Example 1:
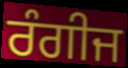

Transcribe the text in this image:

ਰੰਗੀਜ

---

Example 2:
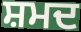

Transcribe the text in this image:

ਸ਼ਮਦ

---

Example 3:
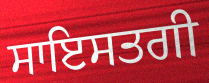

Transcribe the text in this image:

ਸਾਇਸਤਗੀ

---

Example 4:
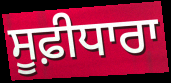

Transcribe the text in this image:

ਸੂਫ਼ੀਧਾਰਾ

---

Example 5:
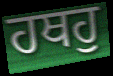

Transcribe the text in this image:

ਹਥਹੁ